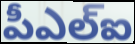
పీఎల్ఐ